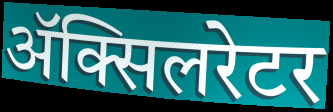
ॲक्सिलरेटर